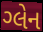
ગ્લેન